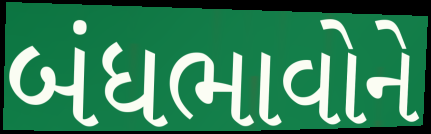
બંધભાવોને